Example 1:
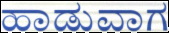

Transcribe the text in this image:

ಹಾಡುವಾಗ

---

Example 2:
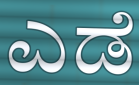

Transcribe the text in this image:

ಎಡೆ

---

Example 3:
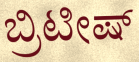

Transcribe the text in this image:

ಬ್ರಿಟೀಷ್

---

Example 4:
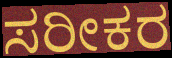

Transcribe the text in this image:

ಸರೀಕರ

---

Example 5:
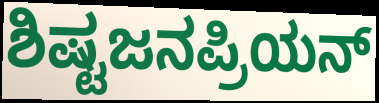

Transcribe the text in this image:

ಶಿಷ್ಟಜನಪ್ರಿಯನ್